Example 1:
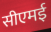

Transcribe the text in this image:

सीएमई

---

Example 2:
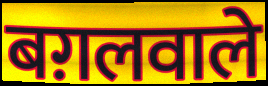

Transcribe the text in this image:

बग़लवाले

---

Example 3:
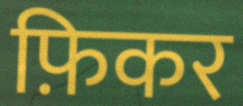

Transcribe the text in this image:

फ़िकर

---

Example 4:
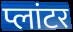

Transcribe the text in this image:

प्लांटर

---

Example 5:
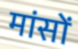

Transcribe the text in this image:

मांसों